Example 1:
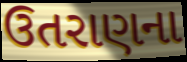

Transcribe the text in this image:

ઉતરાણના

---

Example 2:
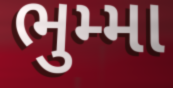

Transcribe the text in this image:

ભુમ્મા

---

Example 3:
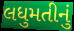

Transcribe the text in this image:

લધુમતીનું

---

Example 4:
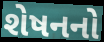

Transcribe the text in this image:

શેષનનો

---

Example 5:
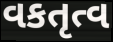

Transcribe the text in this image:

વકતૃત્વ